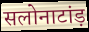
सलोनाटांड़